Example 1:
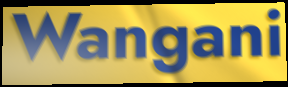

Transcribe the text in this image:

Wangani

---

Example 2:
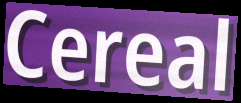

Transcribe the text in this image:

Cereal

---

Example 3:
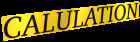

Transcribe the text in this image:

CALULATION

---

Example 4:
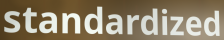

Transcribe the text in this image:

standardized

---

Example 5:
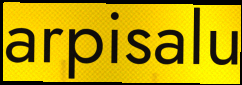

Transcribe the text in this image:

arpisalu